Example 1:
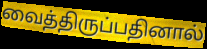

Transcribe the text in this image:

வைத்திருப்பதினால்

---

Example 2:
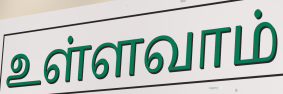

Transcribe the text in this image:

உள்ளவாம்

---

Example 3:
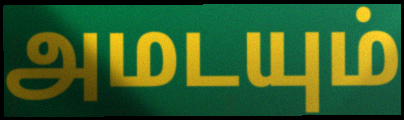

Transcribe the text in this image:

அமடயும்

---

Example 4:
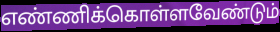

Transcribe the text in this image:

எண்ணிக்கொள்ளவேண்டும்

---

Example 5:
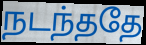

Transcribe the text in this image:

நடந்ததே